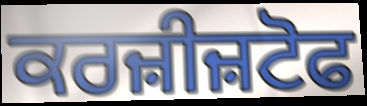
ਕਰਜ਼ੀਜ਼ਟੋਫ